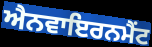
ਐਨਵਾਇਰਨਮੈਂਟ